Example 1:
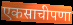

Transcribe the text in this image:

एकसाचीपणा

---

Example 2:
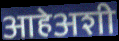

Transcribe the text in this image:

आहेअशी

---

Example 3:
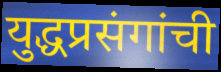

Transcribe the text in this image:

युद्धप्रसंगांची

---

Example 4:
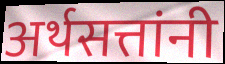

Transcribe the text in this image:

अर्थसत्तांनी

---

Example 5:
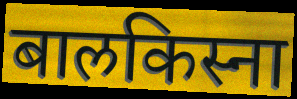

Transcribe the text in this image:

बालकिस्ना